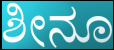
ಶೀನೂ